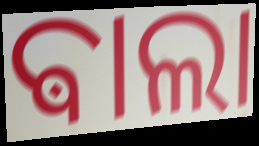
ଵାଲା